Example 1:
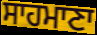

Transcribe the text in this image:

ਸਾਹਮਾਣਾ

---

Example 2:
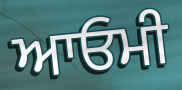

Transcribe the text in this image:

ਆਓਮੀ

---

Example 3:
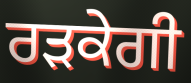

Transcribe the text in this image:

ਰੜਕੇਗੀ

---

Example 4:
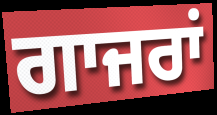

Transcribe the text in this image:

ਗਾਜਰਾਂ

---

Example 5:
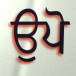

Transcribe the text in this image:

ਉਪੋ